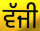
ਵੱਜੀ